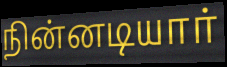
நின்னடியார்